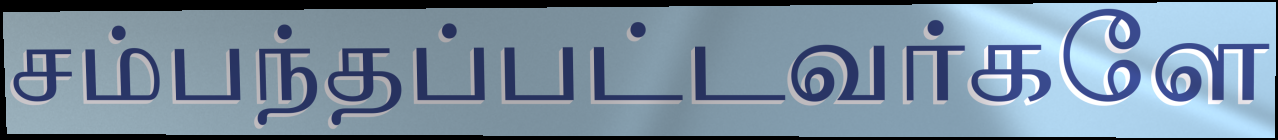
சம்பந்தப்பட்டவர்களே